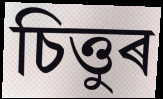
চিত্তুৰ